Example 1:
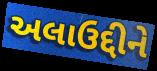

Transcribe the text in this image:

અલાઉદ્દીને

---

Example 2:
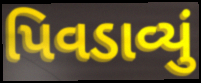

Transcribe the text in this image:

પિવડાવ્યું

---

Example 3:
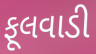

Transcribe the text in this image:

ફૂલવાડી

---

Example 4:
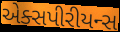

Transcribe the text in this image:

એક્સપીરીયન્સ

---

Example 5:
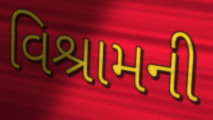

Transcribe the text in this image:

વિશ્રામની